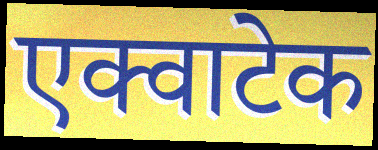
एक्वाटेक